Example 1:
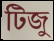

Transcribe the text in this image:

টিজু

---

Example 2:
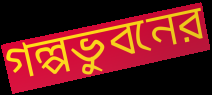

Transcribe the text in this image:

গল্পভুবনের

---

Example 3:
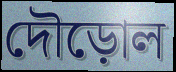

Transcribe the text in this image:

দৌড়োল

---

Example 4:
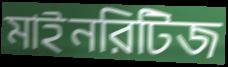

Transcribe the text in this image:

মাইনরিটিজ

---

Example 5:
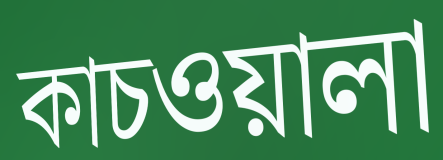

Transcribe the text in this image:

কাচওয়ালা